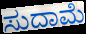
ಸುದಾಮೆ